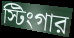
স্টিংগার